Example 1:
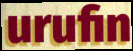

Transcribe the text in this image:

urufin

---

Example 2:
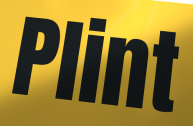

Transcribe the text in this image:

Plint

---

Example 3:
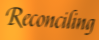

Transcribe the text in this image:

Reconciling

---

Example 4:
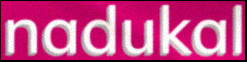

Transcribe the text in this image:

nadukal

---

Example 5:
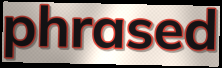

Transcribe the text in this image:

phrased